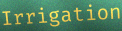
Irrigation